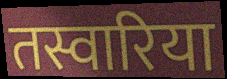
तस्वारिया